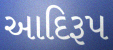
આદિરૂપ